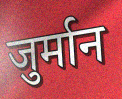
जुर्मान